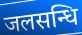
जलसन्धि